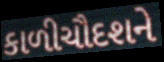
કાળીચૌદશને